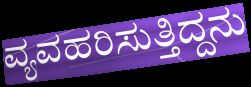
ವ್ಯವಹರಿಸುತ್ತಿದ್ದನು